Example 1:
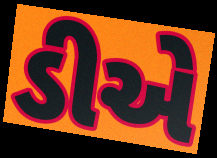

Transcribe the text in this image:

ડીએ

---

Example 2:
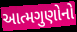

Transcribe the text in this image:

આત્મગુણોનો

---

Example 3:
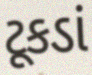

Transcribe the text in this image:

ટૂકડાં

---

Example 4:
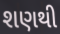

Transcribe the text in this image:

શણથી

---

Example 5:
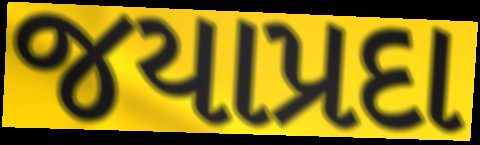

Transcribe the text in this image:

જયાપ્રદા